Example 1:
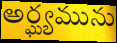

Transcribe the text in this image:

అర్ఘ్యమును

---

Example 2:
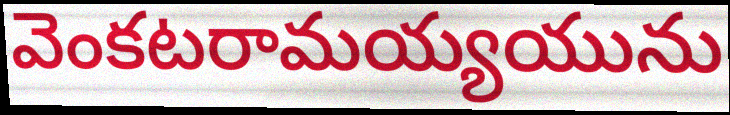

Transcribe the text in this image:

వెంకటరామయ్యయును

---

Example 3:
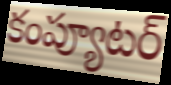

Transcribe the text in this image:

కంప్యూటర్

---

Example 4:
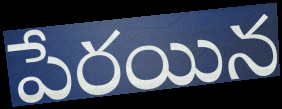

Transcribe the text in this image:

పేరయిన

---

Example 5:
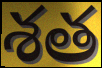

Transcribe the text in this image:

శత